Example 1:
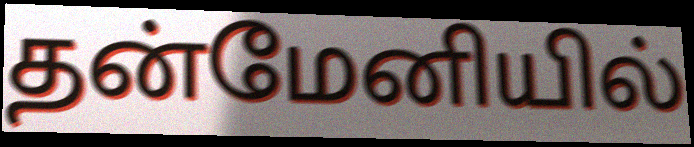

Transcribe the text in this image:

தன்மேனியில்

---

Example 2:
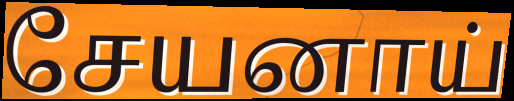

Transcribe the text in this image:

சேயனாய்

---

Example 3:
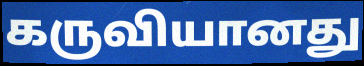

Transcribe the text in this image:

கருவியானது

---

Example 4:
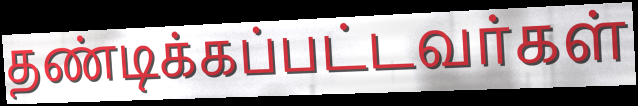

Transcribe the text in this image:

தண்டிக்கப்பட்டவர்கள்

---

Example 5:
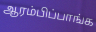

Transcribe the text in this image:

ஆரம்பிப்பாங்க